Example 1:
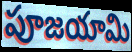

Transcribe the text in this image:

పూజయామి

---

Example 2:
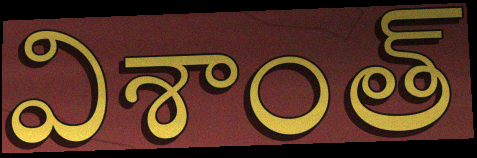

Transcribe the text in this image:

విశాంత్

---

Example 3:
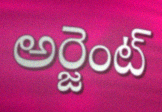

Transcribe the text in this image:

అర్జెంట్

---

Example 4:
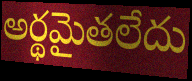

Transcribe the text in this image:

అర్థమైతలేదు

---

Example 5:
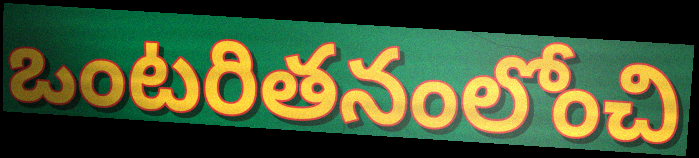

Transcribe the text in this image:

ఒంటరితనంలోంచి